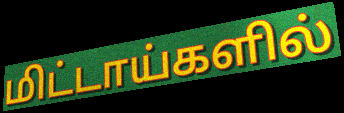
மிட்டாய்களில்